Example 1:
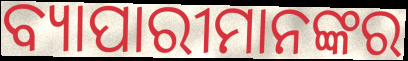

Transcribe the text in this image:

ବ୍ୟାପାରୀମାନଙ୍କର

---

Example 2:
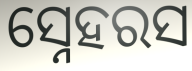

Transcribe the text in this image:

ସ୍ନେହରସ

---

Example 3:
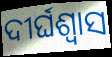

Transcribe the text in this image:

ଦୀର୍ଘଶ୍ଵାସ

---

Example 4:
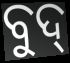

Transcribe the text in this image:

ବୁଦ୍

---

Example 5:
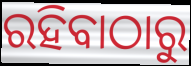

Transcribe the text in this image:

ରହିବାଠାରୁ